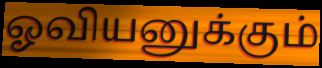
ஓவியனுக்கும்